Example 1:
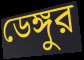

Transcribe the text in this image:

ডেঙ্গুর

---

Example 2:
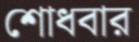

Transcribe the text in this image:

শোধবার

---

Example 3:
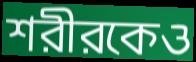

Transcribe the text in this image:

শরীরকেও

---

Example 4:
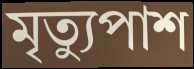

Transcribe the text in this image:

মৃত্যুপাশ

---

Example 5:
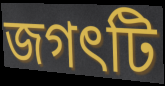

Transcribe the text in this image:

জগৎটি